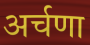
अर्चणा